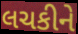
લચકીને